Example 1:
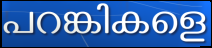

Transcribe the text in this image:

പറങ്കികളെ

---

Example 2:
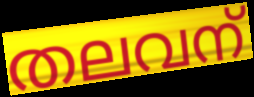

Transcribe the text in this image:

തലവന്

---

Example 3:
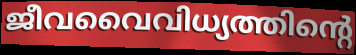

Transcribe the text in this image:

ജീവവൈവിധ്യത്തിന്റെ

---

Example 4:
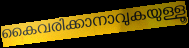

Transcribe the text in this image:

കൈവരിക്കാനാവുകയുള്ളൂ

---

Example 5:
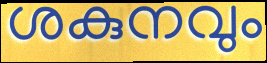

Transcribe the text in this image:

ശകുനവും